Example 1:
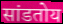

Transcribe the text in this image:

सांडतोय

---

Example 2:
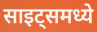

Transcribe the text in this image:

साइट्समध्ये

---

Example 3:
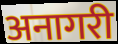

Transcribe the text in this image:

अनागरी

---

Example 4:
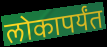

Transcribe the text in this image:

लोकापर्यंत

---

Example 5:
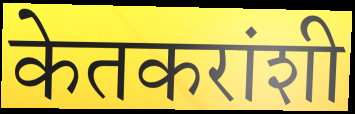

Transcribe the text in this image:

केतकरांशी